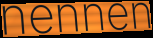
nennen